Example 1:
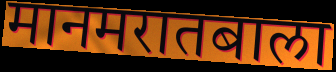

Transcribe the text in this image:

मानमरातबाला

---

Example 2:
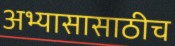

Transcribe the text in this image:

अभ्यासासाठीच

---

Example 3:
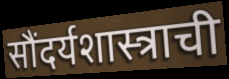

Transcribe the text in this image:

सौंदर्यशास्त्राची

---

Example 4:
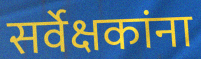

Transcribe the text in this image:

सर्वेक्षकांना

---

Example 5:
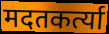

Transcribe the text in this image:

मदतकर्त्या